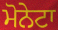
ਮੋਨੇਟਾ